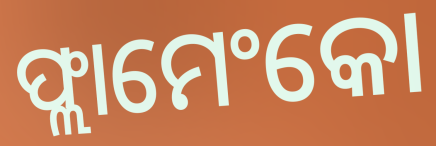
ଫ୍ଲାମେଂକୋ